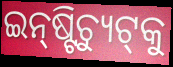
ଇନ୍‌ଷ୍ଟିଚ୍ୟୁଟ୍‌କୁ